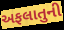
અફલાતુની